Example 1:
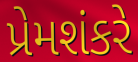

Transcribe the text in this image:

પ્રેમશંકરે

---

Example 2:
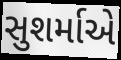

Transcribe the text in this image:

સુશર્માએ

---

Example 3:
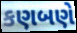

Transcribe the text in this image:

કણબણે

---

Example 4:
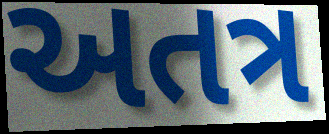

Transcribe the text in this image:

અતત્ર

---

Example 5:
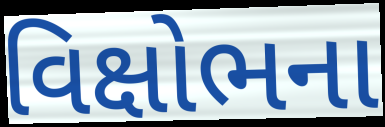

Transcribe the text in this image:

વિક્ષોભના